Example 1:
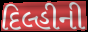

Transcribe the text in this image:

દિલ્હીની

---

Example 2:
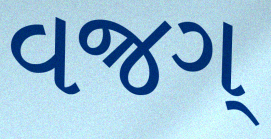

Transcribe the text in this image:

વજ્રગ્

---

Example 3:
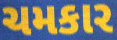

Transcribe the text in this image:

ચમકાર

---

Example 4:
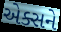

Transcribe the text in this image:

એક્સને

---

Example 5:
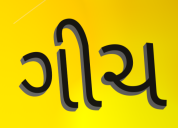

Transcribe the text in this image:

ગીચ